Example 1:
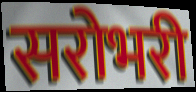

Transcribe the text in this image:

सरोभरी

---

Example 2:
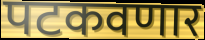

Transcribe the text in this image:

पटकवणार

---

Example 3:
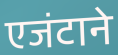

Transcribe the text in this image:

एजंटाने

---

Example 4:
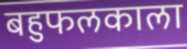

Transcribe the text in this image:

बहुफलकाला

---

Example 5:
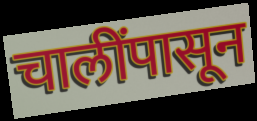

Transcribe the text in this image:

चालींपासून